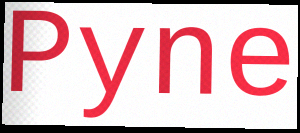
Pyne